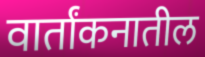
वार्तांकनातील